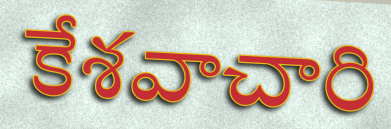
కేశవాచారి